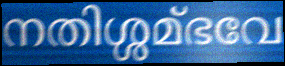
നതിശ്ശമ്ഭവേ